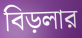
বিড়লার